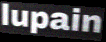
lupain